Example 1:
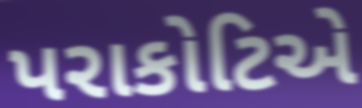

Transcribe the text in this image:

પરાકોટિએ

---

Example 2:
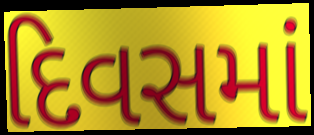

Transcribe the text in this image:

દિવસમાં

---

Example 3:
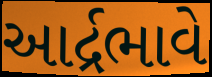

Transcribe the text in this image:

આર્દ્રભાવે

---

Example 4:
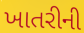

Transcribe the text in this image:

ખાતરીની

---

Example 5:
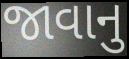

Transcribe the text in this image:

જાવાનુ